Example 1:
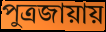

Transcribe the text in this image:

পুত্রজায়ায়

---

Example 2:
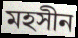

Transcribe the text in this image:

মহসীন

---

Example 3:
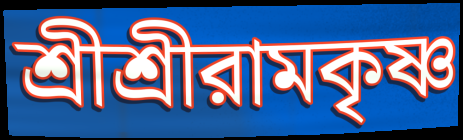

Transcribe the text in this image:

শ্রীশ্রীরামকৃষ্ণ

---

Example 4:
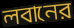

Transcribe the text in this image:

লবানের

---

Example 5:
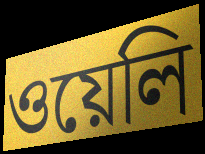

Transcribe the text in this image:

ওয়েলি